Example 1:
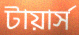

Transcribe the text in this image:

টায়ার্স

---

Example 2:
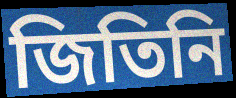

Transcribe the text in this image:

জিতিনি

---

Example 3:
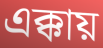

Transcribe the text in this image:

এক্কায়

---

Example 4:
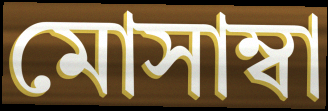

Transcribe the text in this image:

মোসাম্বা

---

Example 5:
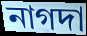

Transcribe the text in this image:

নাগদা